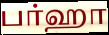
பர்ஹா